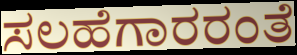
ಸಲಹೆಗಾರರಂತೆ